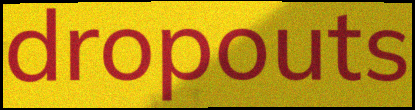
dropouts